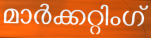
മാർക്കറ്റിംഗ്